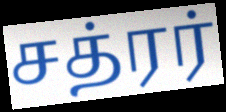
சத்ரர்